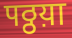
पठ्ठय़ा